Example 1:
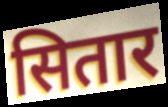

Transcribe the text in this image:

सितार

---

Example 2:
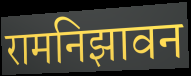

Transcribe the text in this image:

रामनिझावन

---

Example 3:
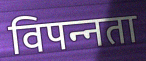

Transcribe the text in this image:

विपन्नता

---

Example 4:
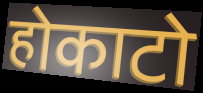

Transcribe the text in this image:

होकाटो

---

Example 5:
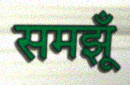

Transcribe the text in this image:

समझूँ